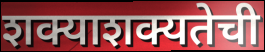
शक्याशक्यतेची